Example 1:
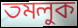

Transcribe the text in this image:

তমলুক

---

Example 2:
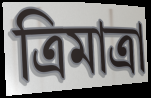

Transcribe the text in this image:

ত্রিমাত্রা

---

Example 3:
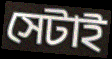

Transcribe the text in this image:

সেটাই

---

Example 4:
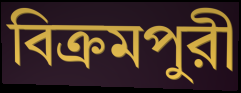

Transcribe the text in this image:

বিক্রমপুরী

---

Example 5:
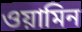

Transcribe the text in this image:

ওয়ামিন